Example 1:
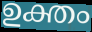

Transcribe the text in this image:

ഉക്തം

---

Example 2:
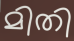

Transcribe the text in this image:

മിതി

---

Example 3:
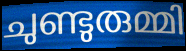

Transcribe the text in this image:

ചുണ്ടുരുമ്മി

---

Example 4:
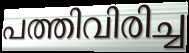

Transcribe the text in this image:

പത്തിവിരിച്ച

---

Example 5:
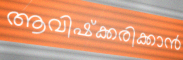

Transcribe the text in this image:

ആവിഷ്‌ക്കരിക്കാൻ